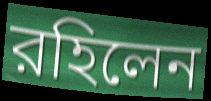
রহিলেন